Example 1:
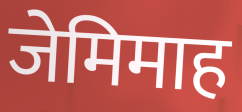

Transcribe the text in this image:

जेमिमाह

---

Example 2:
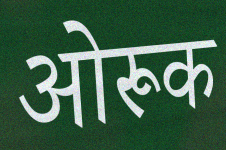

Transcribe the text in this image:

ओरूक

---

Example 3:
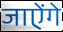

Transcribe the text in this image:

जाऐंगे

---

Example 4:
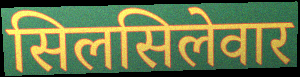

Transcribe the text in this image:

सिलसिलेवार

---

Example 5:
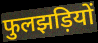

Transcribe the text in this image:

फुलझड़ियों